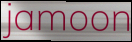
jamoon